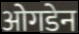
ओगडेन